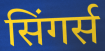
सिंगर्स